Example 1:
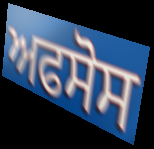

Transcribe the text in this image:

ਅਫਸੋਸ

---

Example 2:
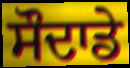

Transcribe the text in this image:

ਸੌਦਾਡੇ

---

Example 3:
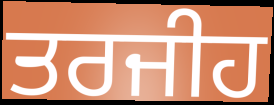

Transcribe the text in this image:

ਤਰਜੀਹ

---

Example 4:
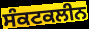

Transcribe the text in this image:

ਸੰਕਟਕਲੀਨ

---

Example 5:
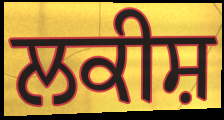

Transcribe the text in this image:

ਲਕੀਸ਼